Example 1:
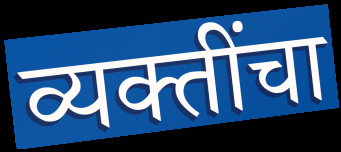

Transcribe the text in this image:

व्यक्तींचा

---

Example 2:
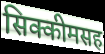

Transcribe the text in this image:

सिक्कीमसह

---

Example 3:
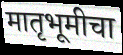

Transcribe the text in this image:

मातृभूमीचा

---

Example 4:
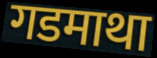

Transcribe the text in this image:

गडमाथा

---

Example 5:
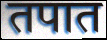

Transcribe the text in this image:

तपात